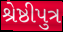
શ્રેષ્ઠીપુત્ર